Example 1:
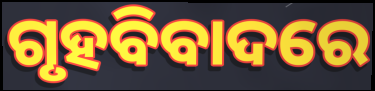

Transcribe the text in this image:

ଗୃହବିବାଦରେ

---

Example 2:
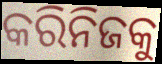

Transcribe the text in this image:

କରିନିଜକୁ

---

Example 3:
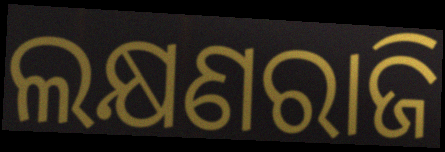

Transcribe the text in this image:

ଲକ୍ଷଣରାଜି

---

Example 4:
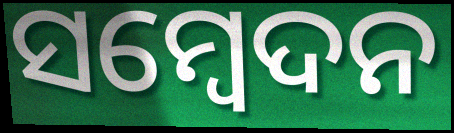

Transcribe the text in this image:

ସମ୍ଵେଦନ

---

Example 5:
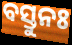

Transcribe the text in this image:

ବସ୍ତୁନଃ